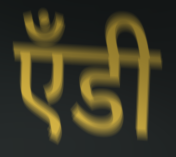
ऍंडी